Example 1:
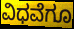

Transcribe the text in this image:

ವಿಧವೆಗೂ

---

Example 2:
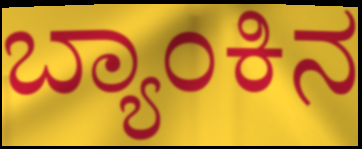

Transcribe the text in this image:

ಬ್ಯಾಂಕಿನ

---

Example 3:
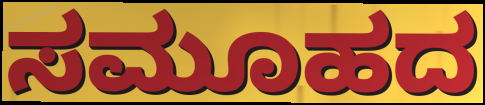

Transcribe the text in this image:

ಸಮೂಹದ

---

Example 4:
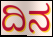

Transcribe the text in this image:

ದಿನ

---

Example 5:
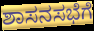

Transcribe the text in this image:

ಶಾಸನಸಭೆಗೆ